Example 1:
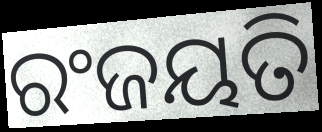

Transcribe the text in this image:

ରଂଜୟତି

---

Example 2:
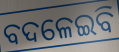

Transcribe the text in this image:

ବଦଳେଇବି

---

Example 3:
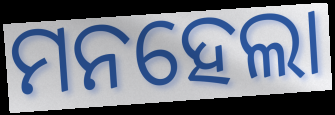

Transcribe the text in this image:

ମନହେଲା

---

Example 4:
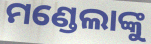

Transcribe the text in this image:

ମଣ୍ଡେଲାଙ୍କୁ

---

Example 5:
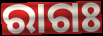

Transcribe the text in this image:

ରାଗଃ